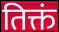
तिक्तं